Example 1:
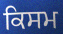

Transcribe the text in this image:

ਕਿਸਮ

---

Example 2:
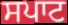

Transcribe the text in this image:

ਸਪਾਟ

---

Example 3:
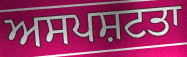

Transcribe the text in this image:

ਅਸਪਸ਼ਟਤਾ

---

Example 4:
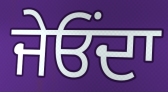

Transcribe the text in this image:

ਜੇਓੰਦਾ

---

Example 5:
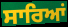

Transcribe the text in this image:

ਸਾਰਿਆਂ